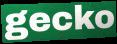
gecko